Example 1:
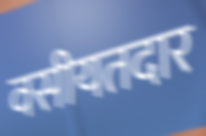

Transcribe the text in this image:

वसीयतदार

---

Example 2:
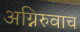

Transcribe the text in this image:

अग्निरुवाच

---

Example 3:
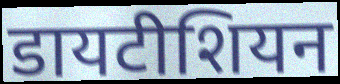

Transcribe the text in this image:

डायटीशियन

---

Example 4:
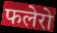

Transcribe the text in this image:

फलेरो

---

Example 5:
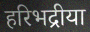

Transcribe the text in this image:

हरिभद्रीया